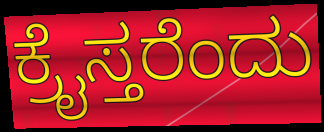
ಕ್ರೈಸ್ತರೆಂದು